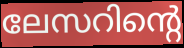
ലേസറിന്റെ